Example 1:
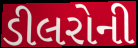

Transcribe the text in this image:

ડીલરોની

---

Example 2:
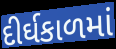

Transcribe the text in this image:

દીર્ઘકાળમાં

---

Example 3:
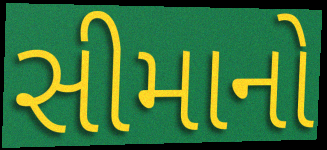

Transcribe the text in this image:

સીમાનો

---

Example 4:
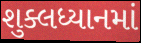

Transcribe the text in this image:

શુક્લધ્યાનમાં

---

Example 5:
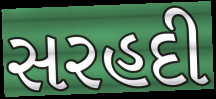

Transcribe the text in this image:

સરહદી